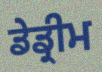
ਡੇਡ੍ਰੀਮ